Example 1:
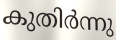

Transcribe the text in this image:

കുതിർന്നു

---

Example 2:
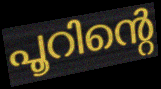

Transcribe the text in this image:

പൂറിന്റെ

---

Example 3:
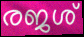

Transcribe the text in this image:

രജശ്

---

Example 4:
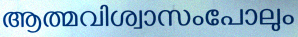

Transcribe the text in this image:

ആത്മവിശ്വാസംപോലും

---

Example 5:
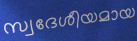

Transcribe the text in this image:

സ്വദേശീയമായ